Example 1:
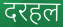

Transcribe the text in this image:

दरहल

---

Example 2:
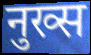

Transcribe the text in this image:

नुख्स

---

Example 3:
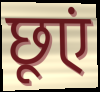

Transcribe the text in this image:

छूएं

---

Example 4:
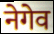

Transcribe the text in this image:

नेगेव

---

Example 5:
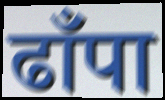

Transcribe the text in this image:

ढाँपा